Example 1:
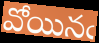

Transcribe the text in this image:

వోయినఁ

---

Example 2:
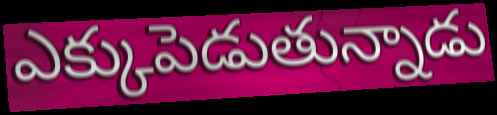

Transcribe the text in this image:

ఎక్కుపెడుతున్నాడు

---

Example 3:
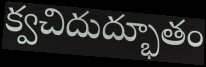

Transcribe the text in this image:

క్వచిదుద్భూతం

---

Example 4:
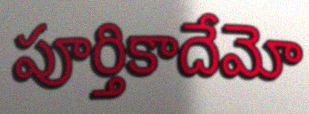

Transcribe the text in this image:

పూర్తికాదేమో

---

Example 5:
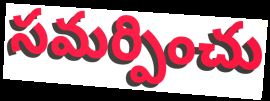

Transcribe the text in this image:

సమర్పించు